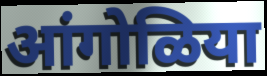
आंगोळिया